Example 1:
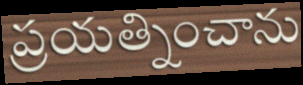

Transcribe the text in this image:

ప్రయత్నించాను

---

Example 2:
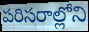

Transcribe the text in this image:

పరిసరాల్లోని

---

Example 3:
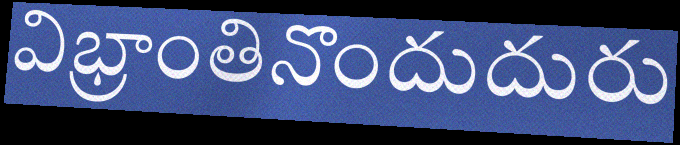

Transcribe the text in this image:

విభ్రాంతినొందుదురు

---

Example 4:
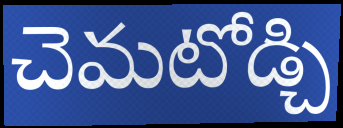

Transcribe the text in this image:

చెమటోడ్చి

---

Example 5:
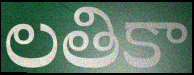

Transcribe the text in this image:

లతికా